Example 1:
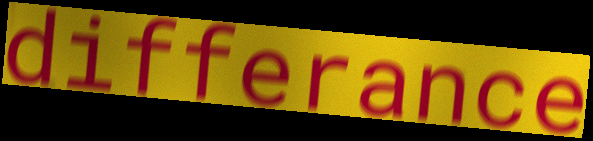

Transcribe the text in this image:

differance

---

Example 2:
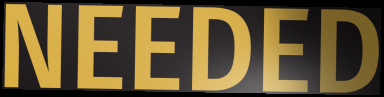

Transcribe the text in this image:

NEEDED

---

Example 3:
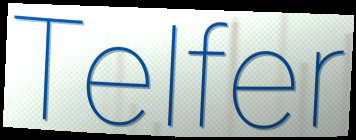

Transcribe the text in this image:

Telfer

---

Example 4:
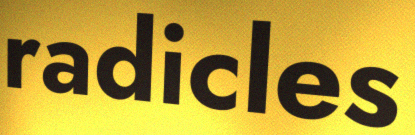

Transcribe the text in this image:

radicles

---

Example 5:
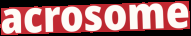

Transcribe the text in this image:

acrosome